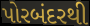
પોરબંદરથી